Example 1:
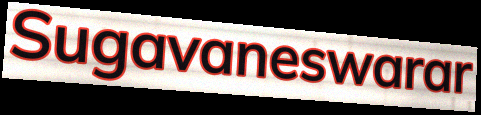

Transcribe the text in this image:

Sugavaneswarar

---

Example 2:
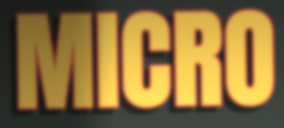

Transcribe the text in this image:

MICRO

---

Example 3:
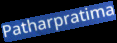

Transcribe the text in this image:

Patharpratima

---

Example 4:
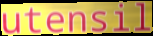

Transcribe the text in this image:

utensil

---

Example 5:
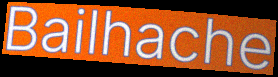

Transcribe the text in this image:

Bailhache